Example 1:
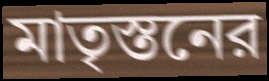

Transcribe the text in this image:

মাতৃস্তনের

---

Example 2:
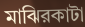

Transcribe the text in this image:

মাঝিরকাটা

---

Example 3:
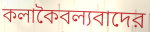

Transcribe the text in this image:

কলাকৈবল্যবাদের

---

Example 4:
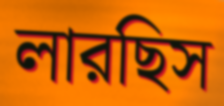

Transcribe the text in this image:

লারছিস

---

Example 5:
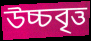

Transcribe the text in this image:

উচ্চবৃত্ত